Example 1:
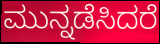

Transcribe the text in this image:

ಮುನ್ನಡೆಸಿದರೆ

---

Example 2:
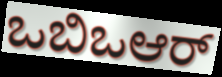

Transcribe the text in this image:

ಒಬಿಒಆರ್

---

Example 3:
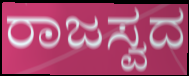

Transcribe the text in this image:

ರಾಜಸ್ವದ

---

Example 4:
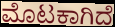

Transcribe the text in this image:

ಮೊಟಕಾಗಿದೆ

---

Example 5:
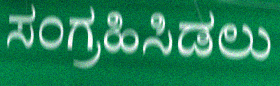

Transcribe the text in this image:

ಸಂಗ್ರಹಿಸಿಡಲು